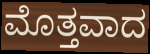
ಮೊತ್ತವಾದ